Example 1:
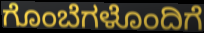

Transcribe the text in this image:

ಗೊಂಬೆಗಳೊಂದಿಗೆ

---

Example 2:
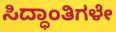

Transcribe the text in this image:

ಸಿದ್ಧಾಂತಿಗಳೇ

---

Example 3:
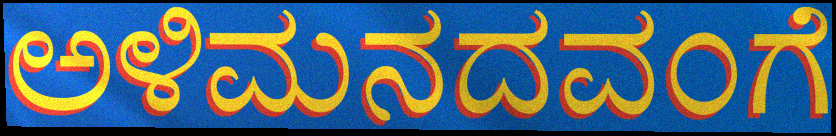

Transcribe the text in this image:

ಅಳಿಮನದವಂಗೆ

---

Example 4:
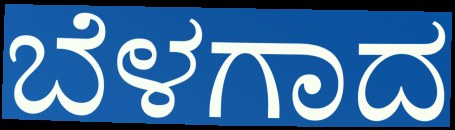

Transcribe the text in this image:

ಬೆಳಗಾದ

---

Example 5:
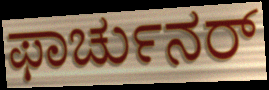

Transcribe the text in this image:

ಫಾರ್ಚುನರ್